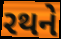
રથને